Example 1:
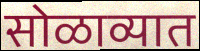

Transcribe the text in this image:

सोळाव्यात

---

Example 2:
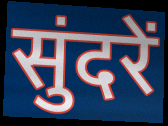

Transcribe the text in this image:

सुंदरें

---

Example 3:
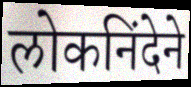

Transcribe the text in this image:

लोकनिंदेने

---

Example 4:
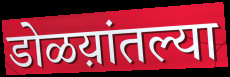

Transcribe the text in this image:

डोळय़ांतल्या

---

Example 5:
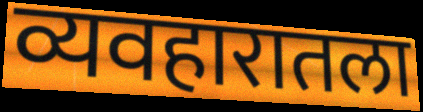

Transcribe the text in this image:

व्यवहारातला